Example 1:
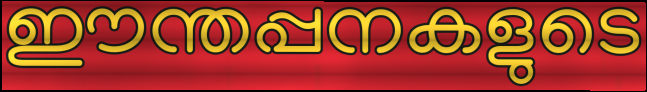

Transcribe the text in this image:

ഈന്തപ്പനകളുടെ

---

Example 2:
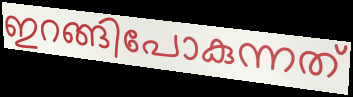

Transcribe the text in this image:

ഇറങ്ങിപോകുന്നത്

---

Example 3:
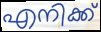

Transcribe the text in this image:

എനിക്ക്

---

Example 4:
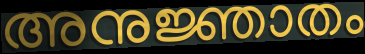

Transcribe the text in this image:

അനുജ്ഞാതം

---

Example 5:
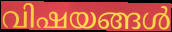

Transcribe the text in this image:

വിഷയങ്ങൾ